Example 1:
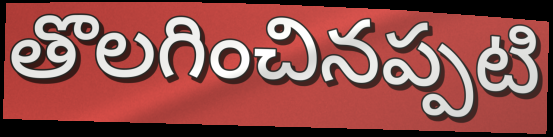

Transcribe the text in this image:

తొలగించినప్పటి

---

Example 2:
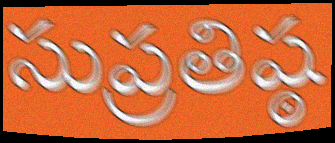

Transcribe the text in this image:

సుప్రతిష్ఠ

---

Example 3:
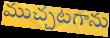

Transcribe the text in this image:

ముచ్చటగాను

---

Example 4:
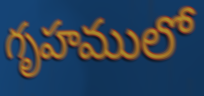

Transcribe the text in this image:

గృహములో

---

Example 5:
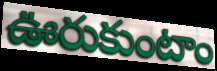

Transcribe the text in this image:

ఊరుకుంటాం